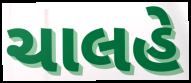
ચાલહે